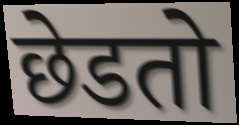
छेडतो